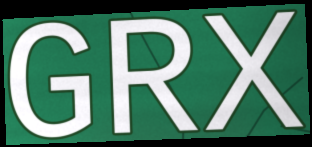
GRX